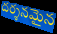
దర్శనమైన